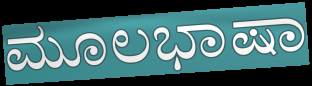
ಮೂಲಭಾಷಾ